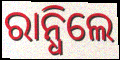
ରାନ୍ଧିଲେ